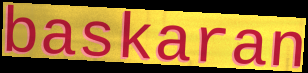
baskaran